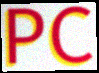
PC